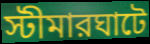
স্টীমারঘাটে